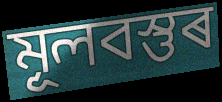
মূলবস্তুৰ